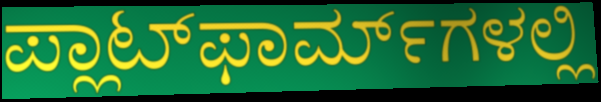
ಪ್ಲಾಟ್‌ಫಾರ್ಮ್‌ಗಳಲ್ಲಿ